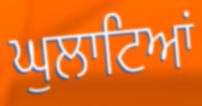
ਘੁਲਾਟਿਆਂ